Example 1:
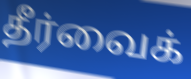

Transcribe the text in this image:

தீர்வைக்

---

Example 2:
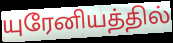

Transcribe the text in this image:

யுரேனியத்தில்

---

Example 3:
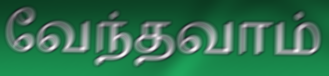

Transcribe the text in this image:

வேந்தவாம்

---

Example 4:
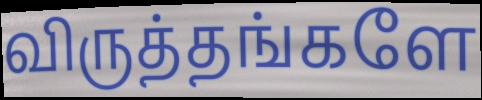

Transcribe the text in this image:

விருத்தங்களே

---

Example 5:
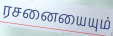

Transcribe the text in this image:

ரசனையையும்